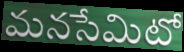
మనసేమిటో